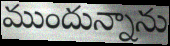
ముందున్నాను